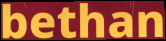
bethan